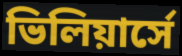
ভিলিয়ার্সে